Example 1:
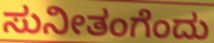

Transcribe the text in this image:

ಸುನೀತಂಗೆಂದು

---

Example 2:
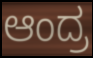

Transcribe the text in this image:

ಆಂದ್ರ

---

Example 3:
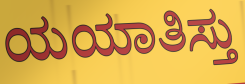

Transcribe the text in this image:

ಯಯಾತಿಸ್ತು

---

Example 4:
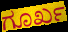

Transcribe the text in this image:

ಗೂರ್ಖ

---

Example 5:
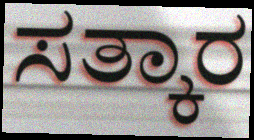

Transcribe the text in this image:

ಸತ್ಕಾರ